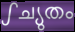
ഽച്യുതം